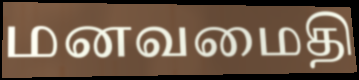
மனவமைதி